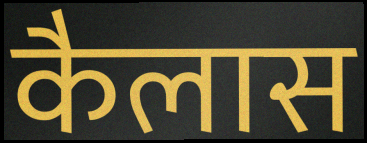
कैलास